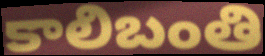
కాలిబంతి